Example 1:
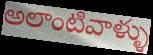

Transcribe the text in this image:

అలాంటివాళ్ళు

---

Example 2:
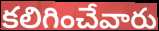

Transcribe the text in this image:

కలిగించేవారు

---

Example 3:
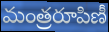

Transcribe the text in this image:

మంత్రరూపిణీ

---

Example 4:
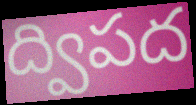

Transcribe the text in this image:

ద్విపద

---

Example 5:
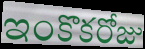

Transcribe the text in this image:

ఇంకొకరోజు